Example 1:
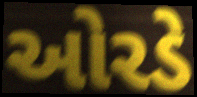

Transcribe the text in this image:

ઓરડે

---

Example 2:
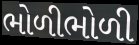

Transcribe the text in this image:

ભોળીભોળી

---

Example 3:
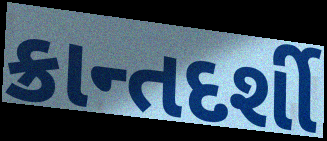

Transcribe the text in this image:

ક્રાન્તદર્શી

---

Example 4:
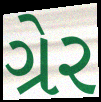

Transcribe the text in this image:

ગ્રેર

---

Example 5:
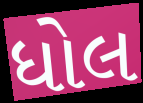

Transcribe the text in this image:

ધોલ